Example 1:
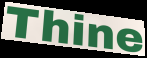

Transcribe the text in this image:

Thine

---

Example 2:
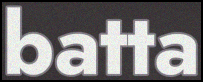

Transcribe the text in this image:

batta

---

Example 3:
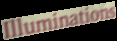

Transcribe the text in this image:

Illuminations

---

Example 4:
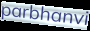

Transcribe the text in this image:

parbhanvi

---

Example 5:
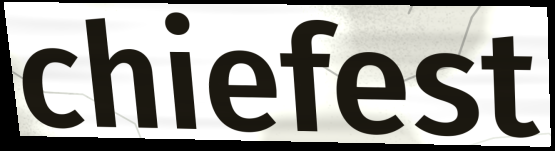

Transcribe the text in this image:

chiefest